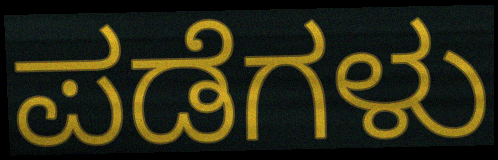
ಪಡೆಗಳು